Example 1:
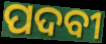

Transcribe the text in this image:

ପଦବୀ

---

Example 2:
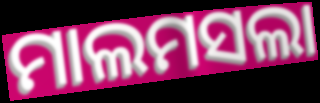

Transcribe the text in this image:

ମାଲମସଲା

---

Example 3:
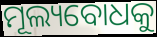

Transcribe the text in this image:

ମୂଲ୍ୟବୋଧକୁ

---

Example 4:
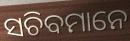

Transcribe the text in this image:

ସଚିବମାନେ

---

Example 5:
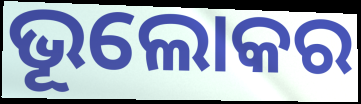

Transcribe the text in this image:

ଭୂଲୋକର